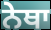
ਨੇਥਾ